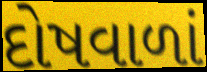
દોષવાળાં